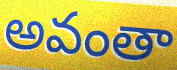
అవంతా